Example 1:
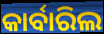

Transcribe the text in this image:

କାର୍ବାରିଲ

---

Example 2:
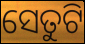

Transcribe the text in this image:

ସେତୁଟି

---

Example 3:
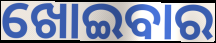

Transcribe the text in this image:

ଖୋଇବାର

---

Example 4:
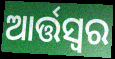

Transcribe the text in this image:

ଆର୍ତ୍ତସ୍ୱର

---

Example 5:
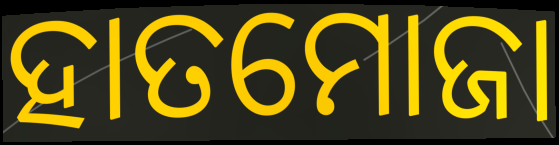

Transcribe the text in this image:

ହାତମୋଜା